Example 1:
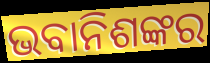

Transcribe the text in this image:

ଭବାନିଶଙ୍କର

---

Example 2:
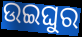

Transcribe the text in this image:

ଉଇଘୁର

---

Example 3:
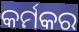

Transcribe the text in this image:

କର୍ମକର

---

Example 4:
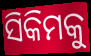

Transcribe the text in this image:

ସିକିମକୁ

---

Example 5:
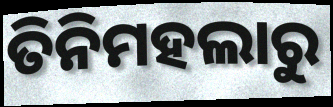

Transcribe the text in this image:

ତିନିମହଲାରୁ